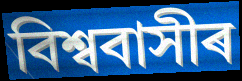
বিশ্ববাসীৰ